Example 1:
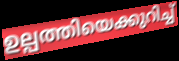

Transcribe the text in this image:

ഉല്പത്തിയെക്കുറിച്ച്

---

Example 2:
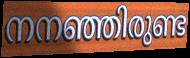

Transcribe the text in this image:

നനഞ്ഞിരുണ്ട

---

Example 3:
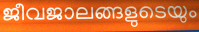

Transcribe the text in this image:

ജീവജാലങ്ങളുടെയും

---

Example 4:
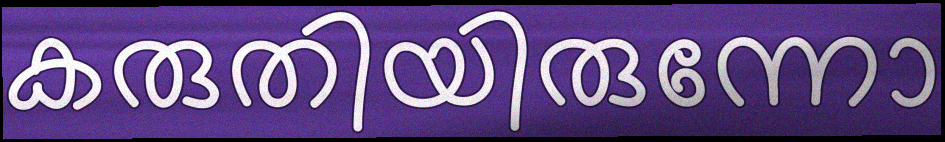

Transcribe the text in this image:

കരുതിയിരുന്നോ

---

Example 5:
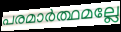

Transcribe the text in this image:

പരമാർത്ഥമല്ലേ